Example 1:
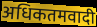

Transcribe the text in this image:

अधिकतमवादी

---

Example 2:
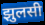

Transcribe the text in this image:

झुलसी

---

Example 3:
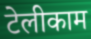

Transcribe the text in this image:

टेलीकाम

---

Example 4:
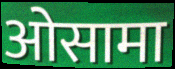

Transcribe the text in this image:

ओसामा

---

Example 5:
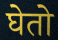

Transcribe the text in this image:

घेतो